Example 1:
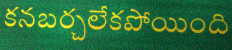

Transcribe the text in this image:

కనబర్చలేకపోయింది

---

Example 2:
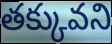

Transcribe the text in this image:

తక్కువని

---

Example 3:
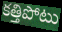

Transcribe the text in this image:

కత్తిపోటు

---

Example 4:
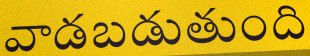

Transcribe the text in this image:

వాడబడుతుంది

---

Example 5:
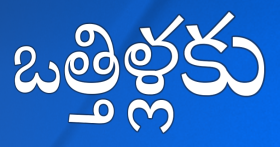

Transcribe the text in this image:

ఒత్తిళ్లకు